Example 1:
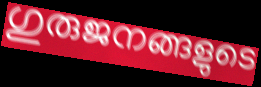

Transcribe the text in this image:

ഗുരുജനങ്ങളുടെ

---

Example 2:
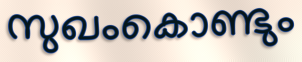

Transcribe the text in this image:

സുഖംകൊണ്ടും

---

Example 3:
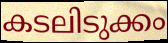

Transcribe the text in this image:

കടലിടുക്കം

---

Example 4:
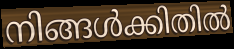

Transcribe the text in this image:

നിങ്ങൾക്കിതിൽ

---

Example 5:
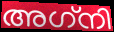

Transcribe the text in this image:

അഗ്‌നി